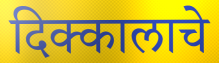
दिक्कालाचे